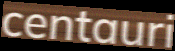
centauri